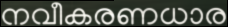
നവീകരണധാര